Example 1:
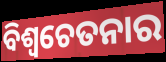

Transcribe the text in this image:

ବିଶ୍ଵଚେତନାର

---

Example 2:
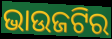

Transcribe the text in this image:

ଭାଉଜଟିର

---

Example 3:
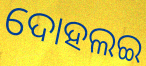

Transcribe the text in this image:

ଦୋହଲଇ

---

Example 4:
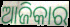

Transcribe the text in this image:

ଆଜିକାର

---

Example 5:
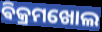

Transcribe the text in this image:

ଵିକ୍ରମଖୋଲ